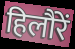
हिलौरें